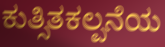
ಕುತ್ಸಿತಕಲ್ಪನೆಯ